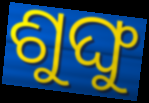
ଶୁଙ୍ଘୁ